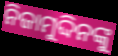
ନିଜାମୁଦ୍ଦିନଙ୍କୁ